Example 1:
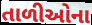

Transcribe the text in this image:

તાળીઓના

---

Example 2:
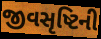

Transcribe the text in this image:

જીવસૃષ્ટિની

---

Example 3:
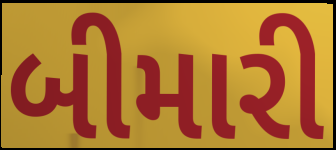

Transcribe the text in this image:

બીમારી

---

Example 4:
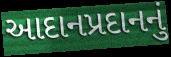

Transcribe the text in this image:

આદાનપ્રદાનનું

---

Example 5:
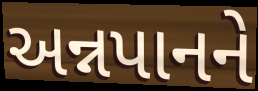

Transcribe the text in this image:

અન્નપાનને